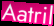
Aatril